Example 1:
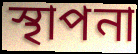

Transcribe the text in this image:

স্থাপনা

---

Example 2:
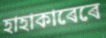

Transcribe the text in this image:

হাহাকাৰেৰে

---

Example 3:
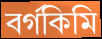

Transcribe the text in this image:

বৰ্গকিমি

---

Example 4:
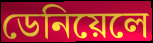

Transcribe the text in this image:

ডেনিয়েলে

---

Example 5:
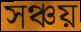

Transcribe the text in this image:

সঞ্চয়